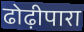
ढोढ़ीपारा